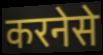
करनेसे